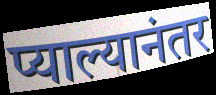
प्याल्यानंतर